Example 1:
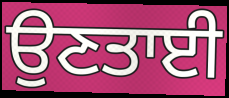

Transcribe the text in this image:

ਉਣਤਾਈ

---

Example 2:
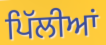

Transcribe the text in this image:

ਪਿੱਲੀਆਂ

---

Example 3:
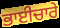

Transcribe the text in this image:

ਭਾਈਚਾਰੇ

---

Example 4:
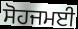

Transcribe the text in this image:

ਸੋਹਜਮਈ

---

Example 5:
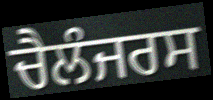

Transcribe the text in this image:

ਚੈਲੰਜਰਸ